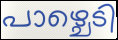
പാഴ്ചെടി